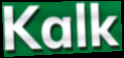
Kalk